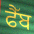
ਫੈੱਬ